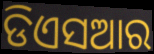
ଡିଏସଆର